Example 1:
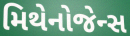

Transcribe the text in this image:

મિથેનોજેન્સ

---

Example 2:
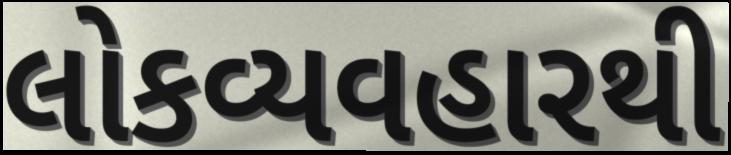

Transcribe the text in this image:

લોકવ્યવહારથી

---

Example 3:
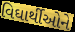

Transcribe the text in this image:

વિઘાર્થીઓને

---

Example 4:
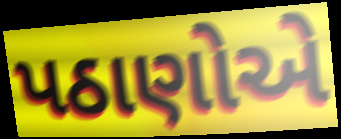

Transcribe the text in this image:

પઠાણોએ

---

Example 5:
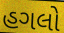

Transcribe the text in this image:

હગલો